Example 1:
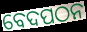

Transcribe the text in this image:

ବେଦପଠନ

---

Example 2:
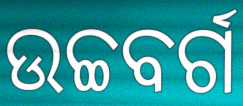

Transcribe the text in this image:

ଉଚ୍ଚବର୍ଗ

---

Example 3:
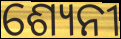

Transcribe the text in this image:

ଶ୍ୟେନୀ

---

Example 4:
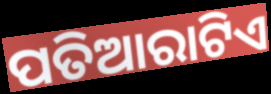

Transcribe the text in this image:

ପତିଆରାଟିଏ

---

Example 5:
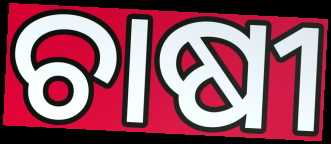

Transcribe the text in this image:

ଚାଷୀ